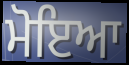
ਮੋਇਆ